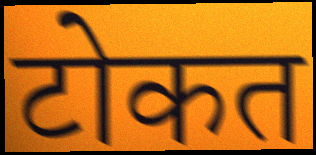
टोकत